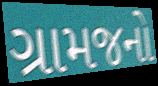
ગ્રામજનો